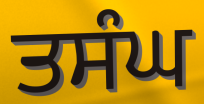
ਤਸੰਘ